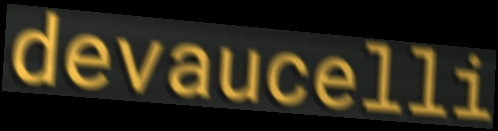
devaucelli